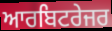
ਆਰਬਿਟਰੇਜਰ